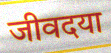
जीवदया